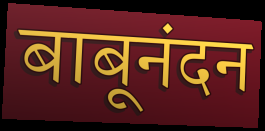
बाबूनंदन